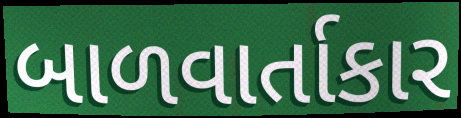
બાળવાર્તાકાર